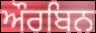
ਔਰਬਿਨ